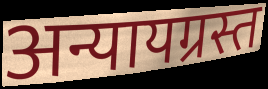
अन्यायग्रस्त